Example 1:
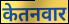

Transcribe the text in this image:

केतनवार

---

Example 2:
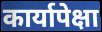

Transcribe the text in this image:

कार्यापेक्षा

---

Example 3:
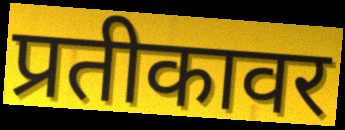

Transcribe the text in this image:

प्रतीकावर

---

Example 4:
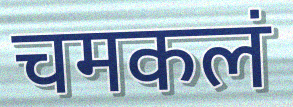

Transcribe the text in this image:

चमकलं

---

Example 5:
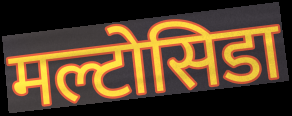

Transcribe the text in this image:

मल्टोसिडा